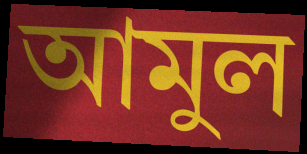
আমুল